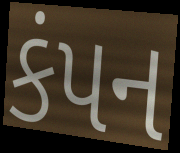
કંપન